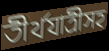
তীর্থযাত্রীসহ